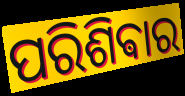
ପରିଶିଵାର